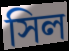
সিল